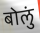
बोलुं